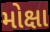
મોક્ષા